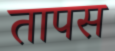
तापस